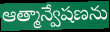
ఆత్మాన్వేషణను